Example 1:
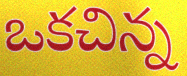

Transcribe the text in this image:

ఒకచిన్న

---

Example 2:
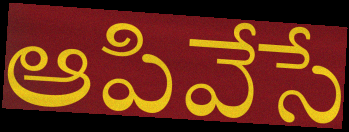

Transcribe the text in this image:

ఆపివేసే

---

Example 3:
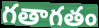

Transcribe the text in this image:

గతాగతం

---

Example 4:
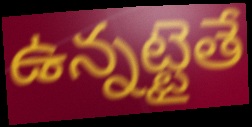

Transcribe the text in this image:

ఉన్నట్టైతే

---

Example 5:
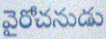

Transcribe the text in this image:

వైరోచనుడు